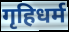
गृहिधर्म